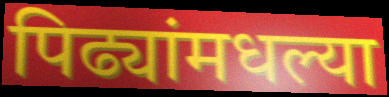
पिढ्यांमधल्या